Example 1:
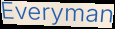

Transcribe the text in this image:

Everyman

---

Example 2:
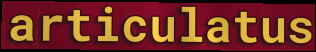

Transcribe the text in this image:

articulatus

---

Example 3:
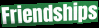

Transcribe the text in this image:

Friendships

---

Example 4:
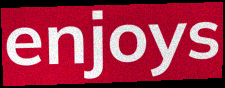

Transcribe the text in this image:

enjoys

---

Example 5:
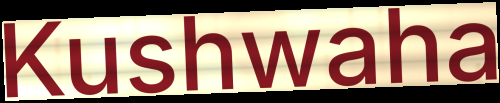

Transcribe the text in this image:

Kushwaha